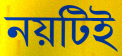
নয়টিই